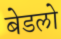
बेडलो